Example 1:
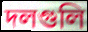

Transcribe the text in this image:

দলগুলি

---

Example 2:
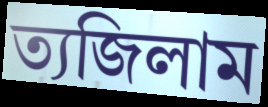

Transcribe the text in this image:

ত্যজিলাম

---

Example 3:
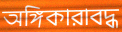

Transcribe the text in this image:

অঙ্গিকারাবদ্ধ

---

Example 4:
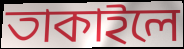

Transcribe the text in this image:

তাকাইলে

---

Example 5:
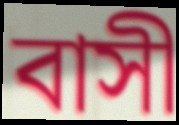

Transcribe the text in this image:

বাসী